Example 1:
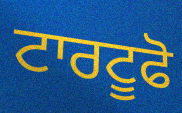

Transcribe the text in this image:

ਟਾਰਟੂਫੋ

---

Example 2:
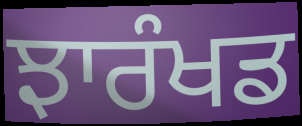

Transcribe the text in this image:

ਝਾਰੰਖਡ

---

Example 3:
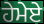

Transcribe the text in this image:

ਹੇਮੇਏ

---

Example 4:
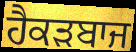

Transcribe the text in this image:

ਹੈਕੜਬਾਜ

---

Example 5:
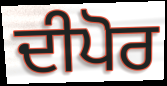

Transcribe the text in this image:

ਦੀਪੋਰ